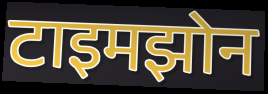
टाइमझोन